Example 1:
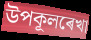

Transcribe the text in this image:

উপকূলৰেখা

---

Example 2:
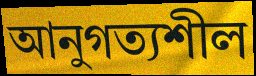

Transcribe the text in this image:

আনুগত্যশীল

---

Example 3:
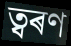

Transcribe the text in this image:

ত্বৰণ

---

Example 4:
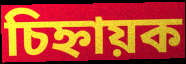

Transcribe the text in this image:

চিহ্নায়ক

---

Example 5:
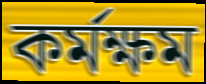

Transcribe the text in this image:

কৰ্মক্ষম